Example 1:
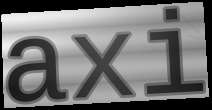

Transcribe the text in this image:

axi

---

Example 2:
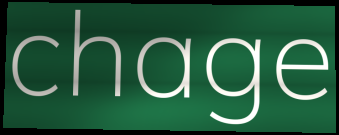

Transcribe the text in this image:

chage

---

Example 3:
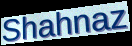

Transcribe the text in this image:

Shahnaz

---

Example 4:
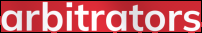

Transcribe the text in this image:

arbitrators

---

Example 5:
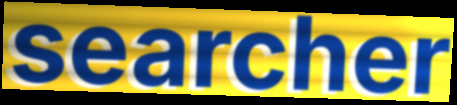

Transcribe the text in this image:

searcher